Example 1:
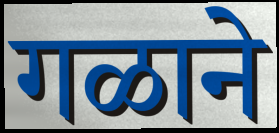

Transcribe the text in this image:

गळाने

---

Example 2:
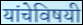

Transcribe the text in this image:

यांचेविषयी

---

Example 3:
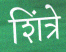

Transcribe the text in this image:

शिंत्रे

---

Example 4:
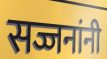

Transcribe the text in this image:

सज्जनांनी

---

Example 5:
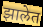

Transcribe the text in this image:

झालेत